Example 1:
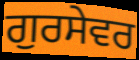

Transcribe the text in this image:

ਗੁਰਸੇਵਰ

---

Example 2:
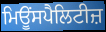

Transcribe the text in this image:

ਮਿਊਂਸਪੈਲਿਟੀਜ਼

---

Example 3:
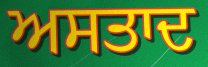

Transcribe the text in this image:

ਅਸਤਾਦ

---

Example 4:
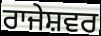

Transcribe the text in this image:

ਰਾਜੇਸ਼ਵਰ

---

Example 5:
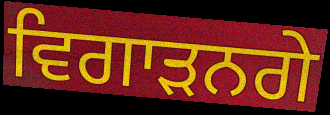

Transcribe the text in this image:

ਵਿਗਾੜਨਗੇ